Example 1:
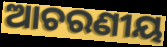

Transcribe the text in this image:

ଆଚରଣୀୟ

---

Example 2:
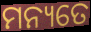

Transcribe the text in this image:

ମନ୍ୟତେ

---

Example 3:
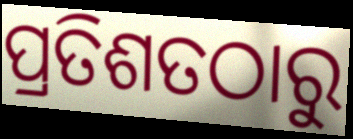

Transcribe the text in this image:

ପ୍ରତିଶତଠାରୁ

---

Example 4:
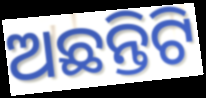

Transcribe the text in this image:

ଅଛନ୍ତିଟି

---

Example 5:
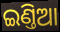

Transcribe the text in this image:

ଇଣ୍ତିଆ